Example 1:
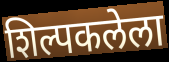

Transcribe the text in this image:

शिल्पकलेला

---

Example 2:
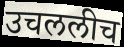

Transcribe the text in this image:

उचललीच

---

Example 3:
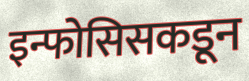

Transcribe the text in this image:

इन्फोसिसकडून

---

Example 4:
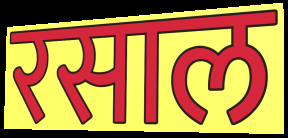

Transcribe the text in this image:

रसाल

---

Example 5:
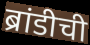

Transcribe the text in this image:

ब्रांडीची